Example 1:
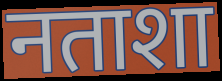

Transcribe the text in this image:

नताशा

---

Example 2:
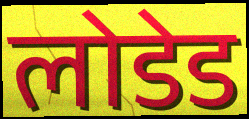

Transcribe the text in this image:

लोडेड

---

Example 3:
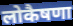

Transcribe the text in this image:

लोकैषणा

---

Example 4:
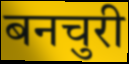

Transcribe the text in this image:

बनचुरी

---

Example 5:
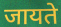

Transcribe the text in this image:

जायते